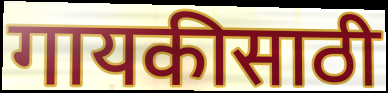
गायकीसाठी